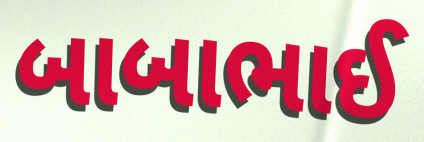
બાબાભાઈ